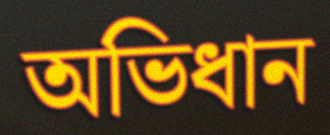
অভিধান